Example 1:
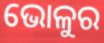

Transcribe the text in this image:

ଭୋଳୁର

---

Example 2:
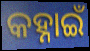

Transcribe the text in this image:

କହ୍ନାଇଁ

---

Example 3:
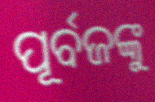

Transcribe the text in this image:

ପୂର୍ବଜଙ୍କୁ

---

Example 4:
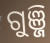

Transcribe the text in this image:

ଗୁଞ୍ଜି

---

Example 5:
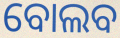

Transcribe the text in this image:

ବୋଲବ